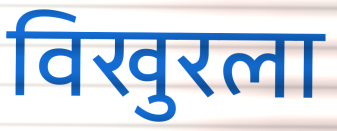
विखुरला